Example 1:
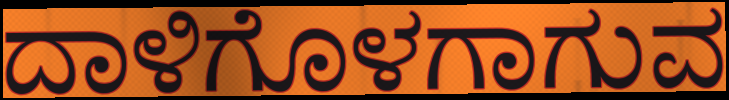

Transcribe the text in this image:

ದಾಳಿಗೊಳಗಾಗುವ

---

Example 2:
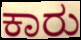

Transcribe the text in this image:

ಕಾರು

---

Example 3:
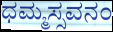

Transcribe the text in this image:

ಧಮ್ಮಸ್ಸವನಂ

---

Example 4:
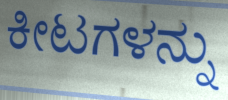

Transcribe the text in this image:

ಕೀಟಗಳನ್ನು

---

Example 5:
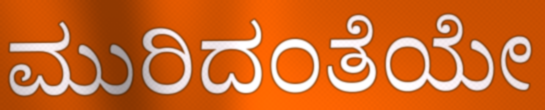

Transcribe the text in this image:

ಮುರಿದಂತೆಯೇ